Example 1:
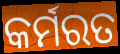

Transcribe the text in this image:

କର୍ମରତ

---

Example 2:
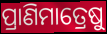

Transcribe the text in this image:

ପ୍ରାଣିମାତ୍ରେଷୁ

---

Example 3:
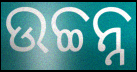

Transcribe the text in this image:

ଉଚ୍ଚନ୍ନ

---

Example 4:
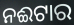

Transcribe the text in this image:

ନଈଟାର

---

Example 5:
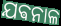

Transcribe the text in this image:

ଯଵନାଳ